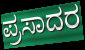
ಪ್ರಸಾದರ